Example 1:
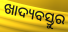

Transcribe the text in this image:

ଖାଦ୍ୟବସ୍ତୁର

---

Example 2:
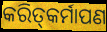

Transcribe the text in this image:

କରିତ୍‌କର୍ମାପଣ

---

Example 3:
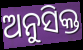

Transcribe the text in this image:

ଅନୁସିକ୍ତ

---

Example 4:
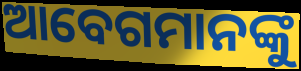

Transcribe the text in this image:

ଆବେଗମାନଙ୍କୁ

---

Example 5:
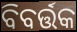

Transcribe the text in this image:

ବିବର୍ତ୍ତକ